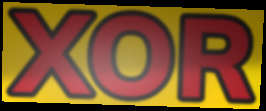
XOR